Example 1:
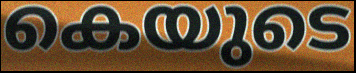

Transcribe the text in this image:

കെയുടെ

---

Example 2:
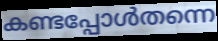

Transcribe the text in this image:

കണ്ടപ്പോൾതന്നെ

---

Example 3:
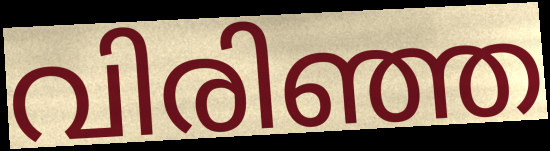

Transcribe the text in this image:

വിരിഞ്ഞ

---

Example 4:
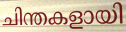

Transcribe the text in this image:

ചിന്തകളായി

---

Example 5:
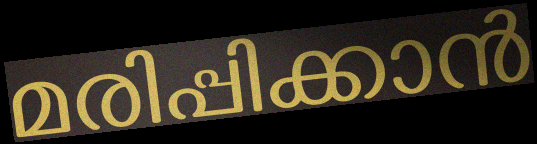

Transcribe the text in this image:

മരിപ്പിക്കാൻ